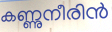
കണ്ണുനീരിൻ